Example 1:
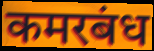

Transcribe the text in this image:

कमरबंध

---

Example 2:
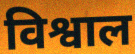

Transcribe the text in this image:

विश्वाल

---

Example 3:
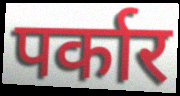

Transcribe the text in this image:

पर्कार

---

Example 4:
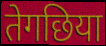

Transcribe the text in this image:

तेगछिया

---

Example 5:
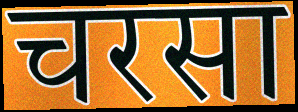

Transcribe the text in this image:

चरसा